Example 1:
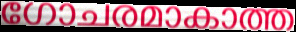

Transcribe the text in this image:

ഗോചരമാകാത്ത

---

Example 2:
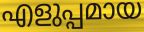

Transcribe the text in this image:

എളുപ്പമായ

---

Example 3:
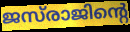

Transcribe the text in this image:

ജസ്‌രാജിന്റെ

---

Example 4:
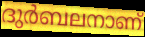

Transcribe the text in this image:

ദുർബലനാണ്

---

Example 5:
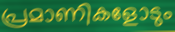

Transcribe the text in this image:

പ്രമാണികളോടും